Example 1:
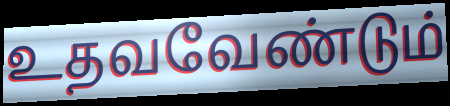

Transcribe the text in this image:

உதவவேண்டும்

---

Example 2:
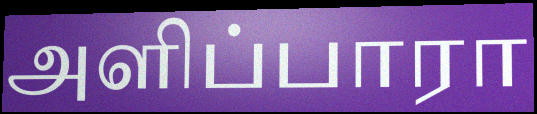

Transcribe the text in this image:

அளிப்பாரா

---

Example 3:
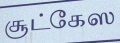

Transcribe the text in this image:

சூட்கேஸ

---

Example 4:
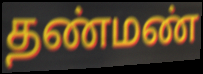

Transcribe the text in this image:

தண்மண்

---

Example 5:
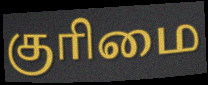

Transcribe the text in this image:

குரிமை